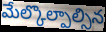
మేల్కొల్పాల్సిన